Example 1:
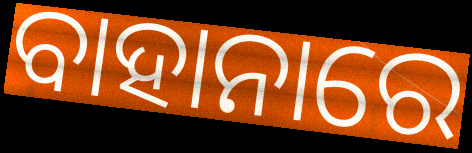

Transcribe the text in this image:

ବାହାନାରେ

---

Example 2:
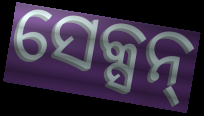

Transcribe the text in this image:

ସେକ୍ସନ୍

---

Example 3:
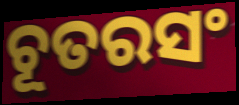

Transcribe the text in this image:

ଚୂତରସଂ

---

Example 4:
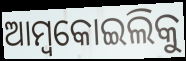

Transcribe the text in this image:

ଆମ୍ବକୋଇଲିକୁ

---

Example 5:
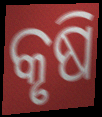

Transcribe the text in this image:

କୃଷି